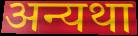
अन्यथा